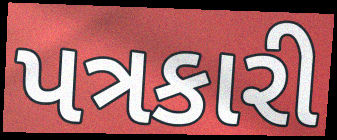
પત્રકારી